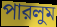
পারলুম